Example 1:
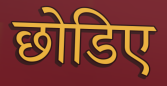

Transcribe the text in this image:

छोडिए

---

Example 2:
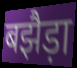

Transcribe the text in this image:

बझैड़ा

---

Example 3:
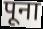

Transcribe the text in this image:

पूना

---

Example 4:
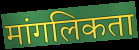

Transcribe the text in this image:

मांगलिकता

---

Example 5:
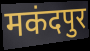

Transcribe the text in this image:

मकंदपुर